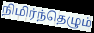
நிமிர்ந்தெழும்